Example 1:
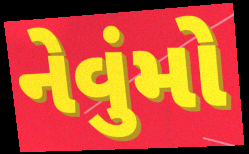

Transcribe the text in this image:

નેવુંમો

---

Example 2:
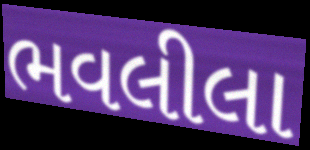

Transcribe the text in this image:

ભવલીલા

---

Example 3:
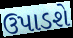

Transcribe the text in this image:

ઉપાડશે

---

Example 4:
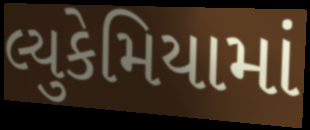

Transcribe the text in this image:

લ્યુકેમિયામાં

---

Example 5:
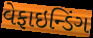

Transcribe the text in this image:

વેફાઇન્ડિંગ